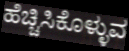
ಹೆಚ್ಚಿಸಿಕೊಳ್ಳುವ